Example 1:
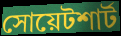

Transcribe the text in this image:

সোয়েটশার্ট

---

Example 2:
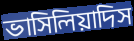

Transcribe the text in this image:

ভাসিলিয়াদিস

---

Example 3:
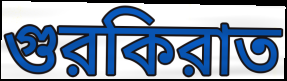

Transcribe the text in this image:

গুরকিরাত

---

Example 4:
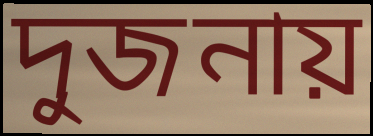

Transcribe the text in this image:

দুজনায়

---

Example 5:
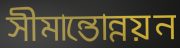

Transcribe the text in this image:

সীমান্তোন্নয়ন